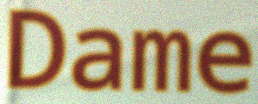
Dame